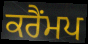
ਕਰੈਂਮਪ